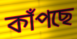
কাঁপছে